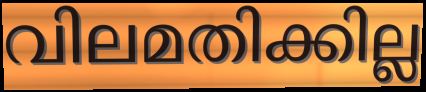
വിലമതിക്കില്ല